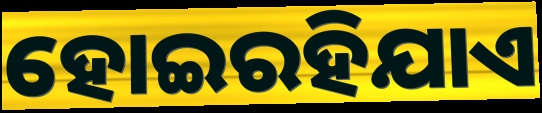
ହୋଇରହିଯାଏ